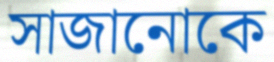
সাজানোকে